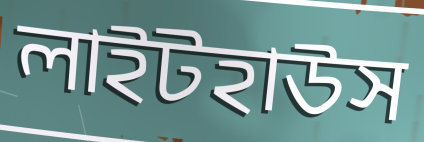
লাইটহাউস